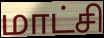
மாட்சி